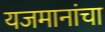
यजमानांचा